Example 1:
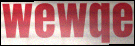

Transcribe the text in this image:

wewqe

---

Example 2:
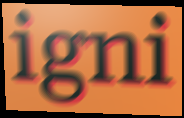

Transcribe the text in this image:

igni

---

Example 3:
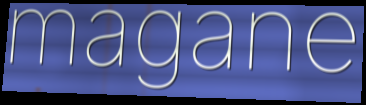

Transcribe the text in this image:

magane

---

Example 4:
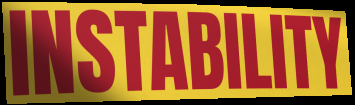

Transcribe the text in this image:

INSTABILITY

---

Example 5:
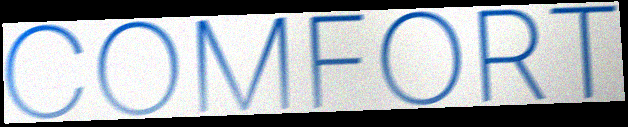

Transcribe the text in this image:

COMFORT